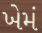
ખેમં